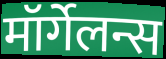
मॉर्गेलन्स